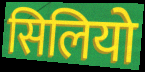
सिलियो